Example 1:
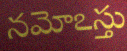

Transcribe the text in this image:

నమోఽస్తు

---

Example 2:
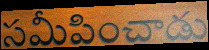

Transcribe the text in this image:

సమీపించాడు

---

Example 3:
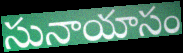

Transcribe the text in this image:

సునాయాసం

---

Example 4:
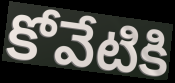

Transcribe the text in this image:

కోవేటికి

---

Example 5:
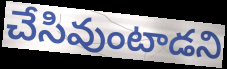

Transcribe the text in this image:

చేసివుంటాడని